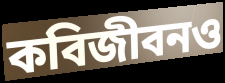
কবিজীবনও